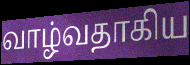
வாழ்வதாகிய